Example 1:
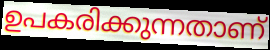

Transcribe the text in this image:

ഉപകരിക്കുന്നതാണ്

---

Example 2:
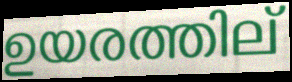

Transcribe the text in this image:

ഉയരത്തില്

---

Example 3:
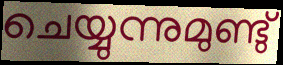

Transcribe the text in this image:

ചെയ്യുന്നുമുണ്ടു്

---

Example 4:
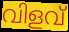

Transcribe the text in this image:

വിളവ്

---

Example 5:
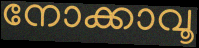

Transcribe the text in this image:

നോക്കാവൂ